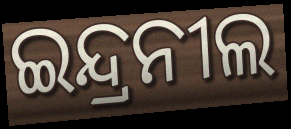
ଇନ୍ଦ୍ରନୀଲ